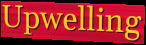
Upwelling